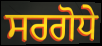
ਸਰਗੋਧੇ